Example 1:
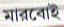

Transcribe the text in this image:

মারবোই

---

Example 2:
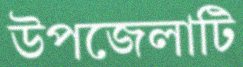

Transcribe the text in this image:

উপজেলাটি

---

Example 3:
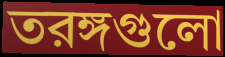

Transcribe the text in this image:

তরঙ্গগুলো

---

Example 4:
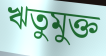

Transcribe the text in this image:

ঋতুমুক্ত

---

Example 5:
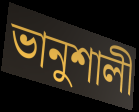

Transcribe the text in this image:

ভানুশালী